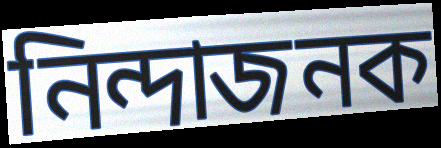
নিন্দাজনক